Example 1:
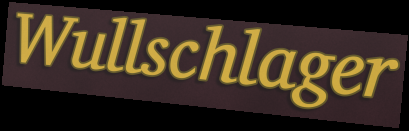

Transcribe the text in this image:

Wullschlager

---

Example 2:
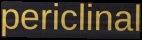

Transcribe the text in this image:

periclinal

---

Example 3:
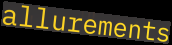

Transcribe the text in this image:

allurements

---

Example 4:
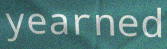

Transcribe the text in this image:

yearned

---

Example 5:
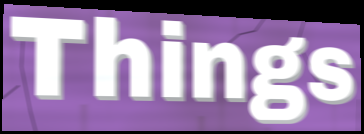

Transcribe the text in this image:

Things